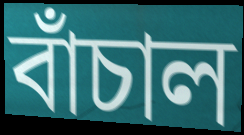
বাঁচাল